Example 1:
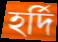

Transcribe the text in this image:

হৰ্দি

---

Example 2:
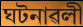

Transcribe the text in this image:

ঘটনাৱলী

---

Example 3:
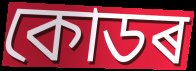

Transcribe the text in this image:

কোডৰ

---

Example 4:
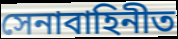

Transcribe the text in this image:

সেনাবাহিনীত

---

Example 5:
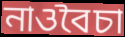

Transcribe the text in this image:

নাওবৈচা